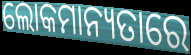
ଲୋକମାନ୍ୟତାରେ